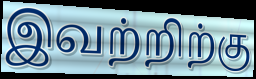
இவற்றிற்கு